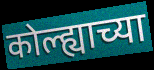
कोल्ह्याच्या